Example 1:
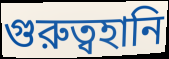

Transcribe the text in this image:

গুরুত্বহানি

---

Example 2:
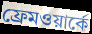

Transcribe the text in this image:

ফ্রেমওয়ার্কে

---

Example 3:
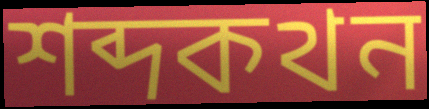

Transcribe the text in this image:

শব্দকথন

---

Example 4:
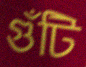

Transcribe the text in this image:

গুঁটি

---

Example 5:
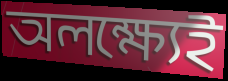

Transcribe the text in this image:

অলক্ষ্যেই